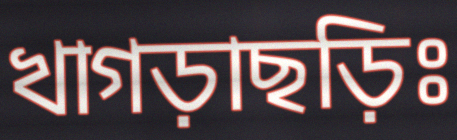
খাগড়াছড়িঃ